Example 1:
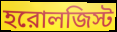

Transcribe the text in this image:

হরোলজিস্ট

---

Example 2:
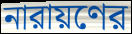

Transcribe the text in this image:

নারায়ণের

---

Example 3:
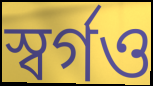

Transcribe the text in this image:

স্বর্গও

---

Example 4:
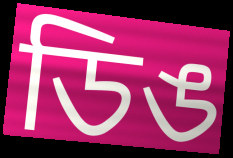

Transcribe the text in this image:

ডিঙ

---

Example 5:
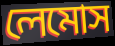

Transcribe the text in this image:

লেমোস